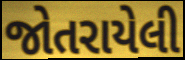
જોતરાયેલી